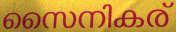
സൈനികര്